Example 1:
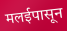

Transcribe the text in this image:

मलईपासून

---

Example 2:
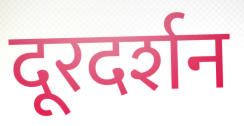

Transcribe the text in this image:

दूरदर्शन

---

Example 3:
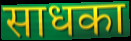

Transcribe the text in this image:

साधका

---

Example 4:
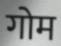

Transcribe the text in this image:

गोम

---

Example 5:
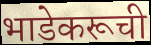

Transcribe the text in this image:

भाडेकरूची